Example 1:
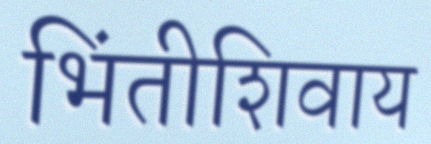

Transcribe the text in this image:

भिंतीशिवाय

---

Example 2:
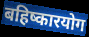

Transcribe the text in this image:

बहिष्कारयोग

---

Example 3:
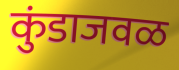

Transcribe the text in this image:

कुंडाजवळ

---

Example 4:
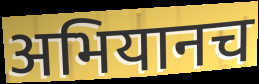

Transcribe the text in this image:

अभियानच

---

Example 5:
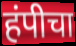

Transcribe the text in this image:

हंपीचा